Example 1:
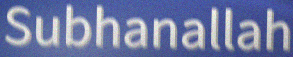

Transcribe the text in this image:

Subhanallah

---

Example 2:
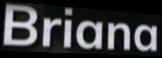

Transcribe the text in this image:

Briana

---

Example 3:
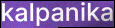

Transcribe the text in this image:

kalpanika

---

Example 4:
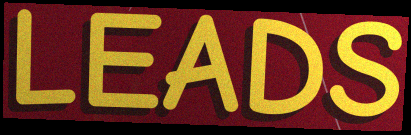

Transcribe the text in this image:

LEADS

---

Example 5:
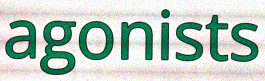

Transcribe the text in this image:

agonists